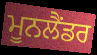
ਮੂਨਲੈਂਡਰ